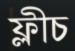
ফ্লীচ